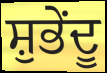
ਸ਼ੁਭੇਂਦੂ